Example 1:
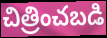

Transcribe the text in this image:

చిత్రించబడి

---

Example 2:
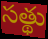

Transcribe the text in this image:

సత్థు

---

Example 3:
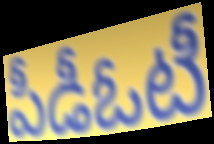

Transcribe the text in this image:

పీడీఓటీ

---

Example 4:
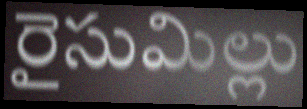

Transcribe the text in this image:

రైసుమిల్లు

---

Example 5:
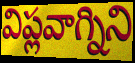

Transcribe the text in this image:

విప్లవాగ్నిని